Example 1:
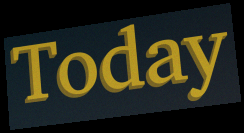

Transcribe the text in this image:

Today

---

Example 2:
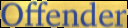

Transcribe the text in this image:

Offender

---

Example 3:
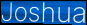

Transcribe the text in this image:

Joshua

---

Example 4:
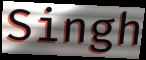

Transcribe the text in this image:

Singh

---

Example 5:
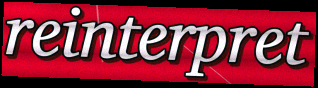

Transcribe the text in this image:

reinterpret